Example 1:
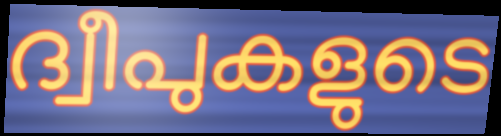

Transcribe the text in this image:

ദ്വീപുകളുടെ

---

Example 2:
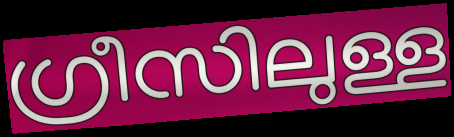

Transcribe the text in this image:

ഗ്രീസിലുള്ള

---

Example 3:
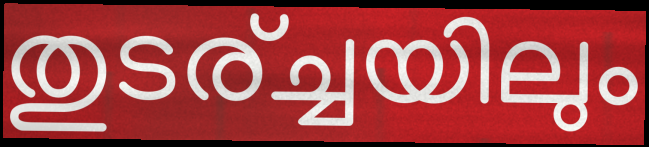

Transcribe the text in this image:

തുടര്ച്ചയിലും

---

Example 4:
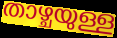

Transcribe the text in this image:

താഴ്ചയുള്ള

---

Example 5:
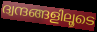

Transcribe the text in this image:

ദ്വന്ദങ്ങളിലൂടെ